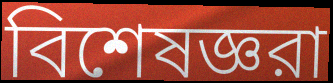
বিশেষজ্ঞরা